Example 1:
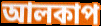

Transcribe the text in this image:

আলকাপ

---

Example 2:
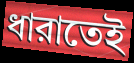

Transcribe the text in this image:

ধারাতেই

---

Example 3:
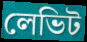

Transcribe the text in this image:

লেভিট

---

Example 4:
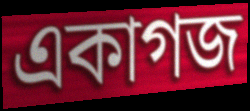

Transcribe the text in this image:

একাগজ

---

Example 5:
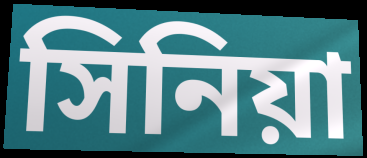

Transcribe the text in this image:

সিনিয়া